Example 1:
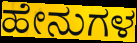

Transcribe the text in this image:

ಹೇನುಗಳ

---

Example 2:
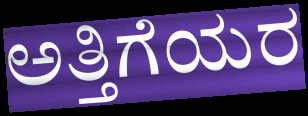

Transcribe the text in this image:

ಅತ್ತಿಗೆಯರ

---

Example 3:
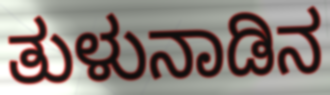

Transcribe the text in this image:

ತುಳುನಾಡಿನ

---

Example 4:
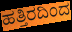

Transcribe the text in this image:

ಹತ್ತಿರದಿಂದ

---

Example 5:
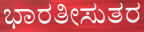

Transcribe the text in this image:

ಭಾರತೀಸುತರ